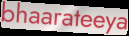
bhaarateeya